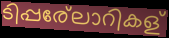
ടിപ്പര്ലോറികള്